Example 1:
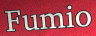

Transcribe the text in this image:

Fumio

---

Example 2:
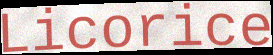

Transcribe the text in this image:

Licorice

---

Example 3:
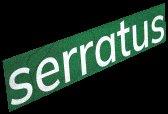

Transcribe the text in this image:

serratus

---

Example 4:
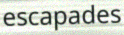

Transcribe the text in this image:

escapades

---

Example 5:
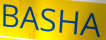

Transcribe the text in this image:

BASHA